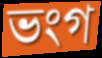
ভংগ